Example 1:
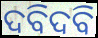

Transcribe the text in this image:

ଦବିଦବି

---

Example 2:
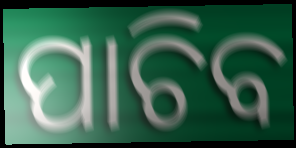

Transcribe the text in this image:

ପାଚିବ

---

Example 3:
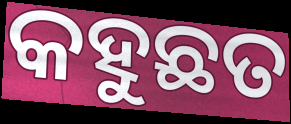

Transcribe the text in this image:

କହୁଛତ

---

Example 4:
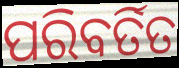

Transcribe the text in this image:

ପରିବର୍ତିତ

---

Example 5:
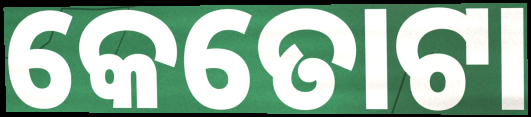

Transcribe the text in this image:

କେତୋଟା